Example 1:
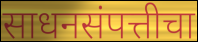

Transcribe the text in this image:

साधनसंपत्तीचा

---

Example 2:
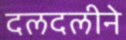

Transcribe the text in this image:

दलदलीने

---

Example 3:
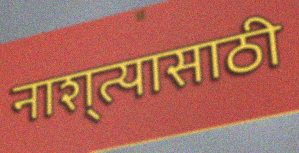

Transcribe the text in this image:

नाश्त्यासाठी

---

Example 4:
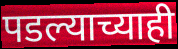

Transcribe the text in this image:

पडल्याच्याही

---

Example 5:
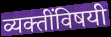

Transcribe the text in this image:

व्यक्तींविषयी